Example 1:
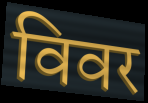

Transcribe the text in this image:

विवर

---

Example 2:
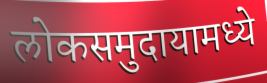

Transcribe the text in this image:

लोकसमुदायामध्ये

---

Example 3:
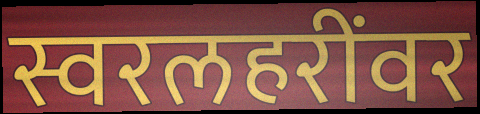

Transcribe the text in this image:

स्वरलहरींवर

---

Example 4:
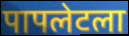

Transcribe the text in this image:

पापलेटला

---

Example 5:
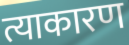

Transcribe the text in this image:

त्याकारण